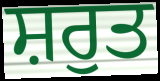
ਸ਼ਰੁਤ